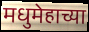
मधुमेहाच्या